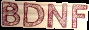
BDNF